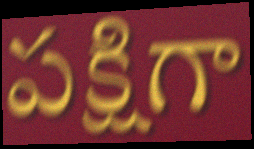
పక్షిగా